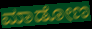
ಮಾಡೋಣ